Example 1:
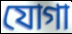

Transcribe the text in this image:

যোগা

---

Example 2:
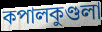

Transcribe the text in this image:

কপালকুণ্ডলা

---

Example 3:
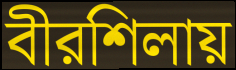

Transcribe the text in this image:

বীরশিলায়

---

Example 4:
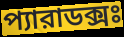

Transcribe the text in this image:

প্যারাডক্সঃ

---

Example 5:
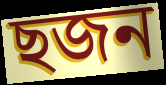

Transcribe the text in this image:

ছজন